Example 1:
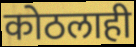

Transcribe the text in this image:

कोठलाही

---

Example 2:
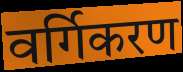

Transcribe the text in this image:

वर्गिकरण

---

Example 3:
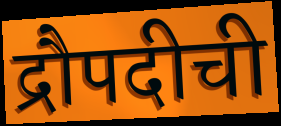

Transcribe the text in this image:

द्रौपदीची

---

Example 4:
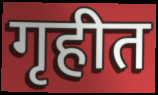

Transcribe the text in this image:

गृहीत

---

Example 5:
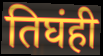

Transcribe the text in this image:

तिघंही